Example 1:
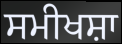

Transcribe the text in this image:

ਸਮੀਖਸ਼ਾ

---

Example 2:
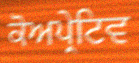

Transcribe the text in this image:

ਕੋਅਪ੍ਰੇਟਿਵ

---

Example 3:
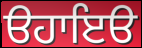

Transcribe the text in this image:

ੳਹਾਇੳ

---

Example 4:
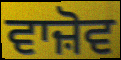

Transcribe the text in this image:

ਵਾਜ਼ੋਵ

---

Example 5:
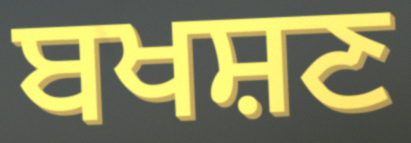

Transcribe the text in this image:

ਬਖਸ਼ਣ